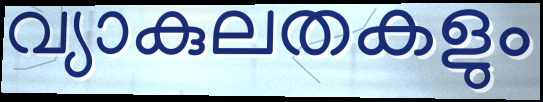
വ്യാകുലതകളും